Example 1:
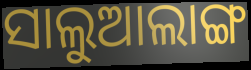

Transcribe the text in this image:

ସାଲୁଆଲାଙ୍ଗ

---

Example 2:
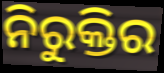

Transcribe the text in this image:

ନିରୁକ୍ତିର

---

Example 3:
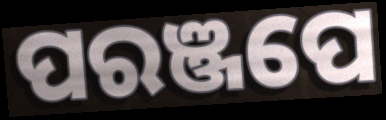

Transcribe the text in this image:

ପରଞ୍ଜପେ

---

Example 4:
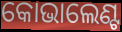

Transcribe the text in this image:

କୋଭାଲେଣ୍ଟ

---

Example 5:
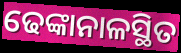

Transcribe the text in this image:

ଢେଙ୍କାନାଳସ୍ଥିତ